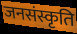
जनसंस्कृति